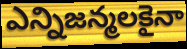
ఎన్నిజన్మలకైనా